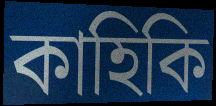
কাহিকি